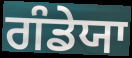
ਗੰਡੇਯਾ